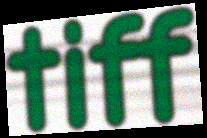
tiff